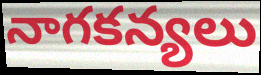
నాగకన్యలు